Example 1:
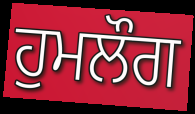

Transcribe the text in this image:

ਹੁਮਲੌਗ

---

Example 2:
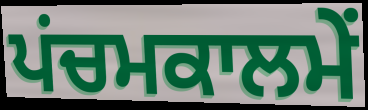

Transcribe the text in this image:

ਪਂਚਮਕਾਲਮੇਂ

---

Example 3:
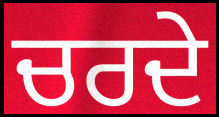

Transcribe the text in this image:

ਚਰਦੇ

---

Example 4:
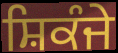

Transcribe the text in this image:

ਸ਼ਿਕੰਜੇ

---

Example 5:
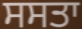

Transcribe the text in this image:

ਸਸਤਾ